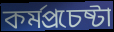
কর্মপ্রচেষ্টা